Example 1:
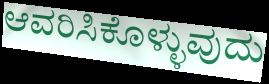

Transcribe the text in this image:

ಆವರಿಸಿಕೊಳ್ಳುವುದು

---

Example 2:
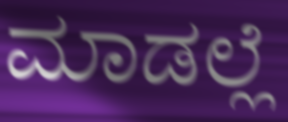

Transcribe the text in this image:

ಮಾಡಲ್ಲೆ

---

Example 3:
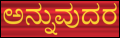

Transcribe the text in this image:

ಅನ್ನುವುದರ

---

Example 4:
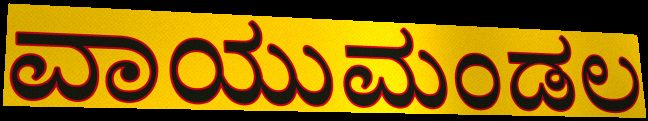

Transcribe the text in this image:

ವಾಯುಮಂಡಲ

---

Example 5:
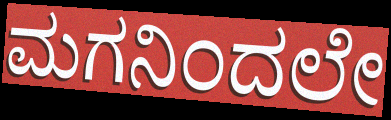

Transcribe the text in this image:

ಮಗನಿಂದಲೇ